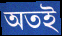
অতই